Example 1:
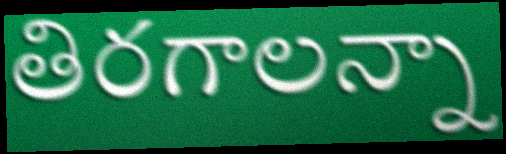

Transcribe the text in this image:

తిరగాలన్నా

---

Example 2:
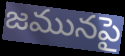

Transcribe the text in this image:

జమునపై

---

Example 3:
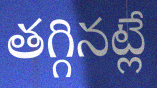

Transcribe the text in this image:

తగ్గినట్లే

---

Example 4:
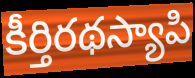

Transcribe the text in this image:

కీర్తిరథస్యాపి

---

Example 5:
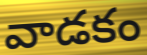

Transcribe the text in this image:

వాడకం